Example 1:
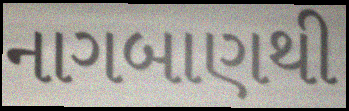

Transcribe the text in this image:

નાગબાણથી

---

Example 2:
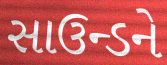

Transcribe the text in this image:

સાઉન્ડને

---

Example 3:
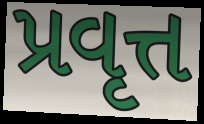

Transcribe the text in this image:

પ્રવૃત્ત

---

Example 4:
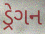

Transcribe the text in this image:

ડ્રેગન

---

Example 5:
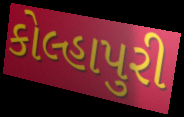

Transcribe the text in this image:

કોલ્હાપુરી